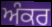
ਅੰਕਰ